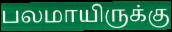
பலமாயிருக்கு